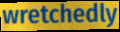
wretchedly